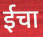
ईचा